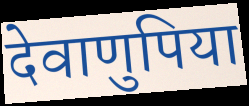
देवाणुपिया